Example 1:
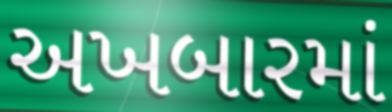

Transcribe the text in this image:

અખબારમાં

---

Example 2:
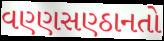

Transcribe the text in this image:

વણ્ણસણ્ઠાનતો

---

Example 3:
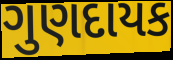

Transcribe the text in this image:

ગુણદાયક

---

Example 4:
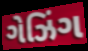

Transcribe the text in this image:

ગેઝિંગ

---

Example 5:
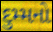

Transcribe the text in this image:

દુમ્મનો